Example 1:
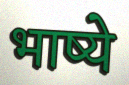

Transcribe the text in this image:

भाष्ये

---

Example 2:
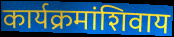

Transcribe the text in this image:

कार्यक्रमांशिवाय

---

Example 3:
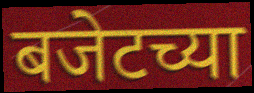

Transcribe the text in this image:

बजेटच्या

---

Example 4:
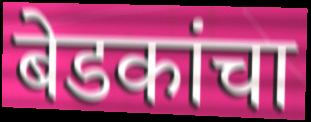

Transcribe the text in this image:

बेडकांचा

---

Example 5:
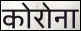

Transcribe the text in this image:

कोरोना